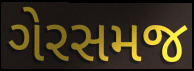
ગેરસમજ